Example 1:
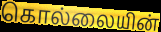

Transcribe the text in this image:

கொல்லையின்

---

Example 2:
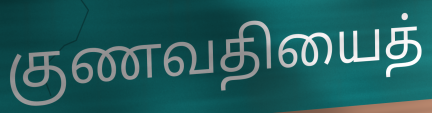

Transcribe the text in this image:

குணவதியைத்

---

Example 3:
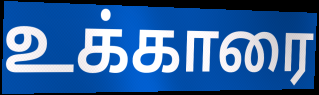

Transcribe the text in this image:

உக்காரை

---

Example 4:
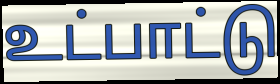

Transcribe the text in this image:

உட்பாட்டு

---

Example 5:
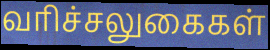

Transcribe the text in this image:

வரிச்சலுகைகள்